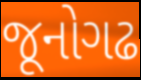
જૂનોગઢ